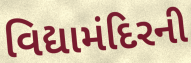
વિદ્યામંદિરની